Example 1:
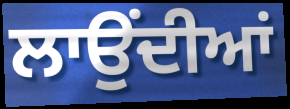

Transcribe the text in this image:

ਲਾਉਂਦੀਆਂ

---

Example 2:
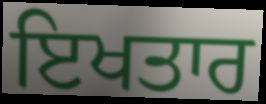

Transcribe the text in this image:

ਇਖਤਾਰ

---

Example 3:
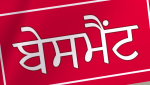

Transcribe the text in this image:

ਬੇਸਮੈਂਟ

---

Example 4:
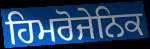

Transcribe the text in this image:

ਹਿਮਰੋਜੇਨਿਕ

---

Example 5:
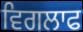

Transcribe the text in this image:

ਵਿਗਲਾਫ